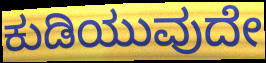
ಕುಡಿಯುವುದೇ